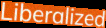
Liberalized